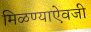
मिळण्याऐवजी